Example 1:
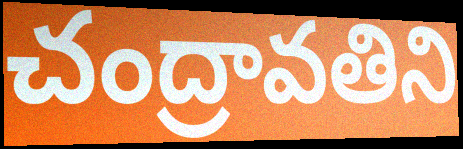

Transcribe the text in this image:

చంద్రావతిని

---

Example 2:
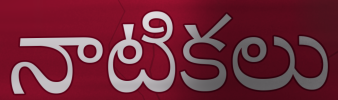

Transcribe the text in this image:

నాటికలు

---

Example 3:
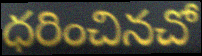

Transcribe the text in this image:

ధరించినచో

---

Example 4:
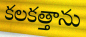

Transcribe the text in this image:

కలకత్తాను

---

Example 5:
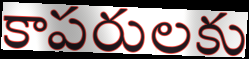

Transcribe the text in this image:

కాపరులకు